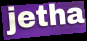
jetha